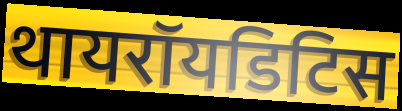
थायरॉयडिटिस